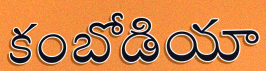
కంబోడియా